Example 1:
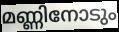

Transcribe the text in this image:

മണ്ണിനോടും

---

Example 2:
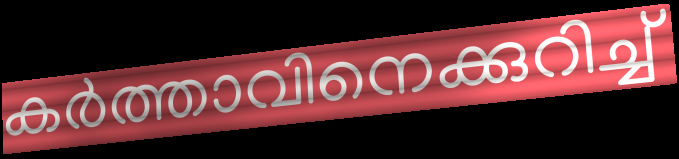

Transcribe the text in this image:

കർത്താവിനെക്കുറിച്ച്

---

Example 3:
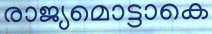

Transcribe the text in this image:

രാജ്യമൊട്ടാകെ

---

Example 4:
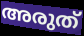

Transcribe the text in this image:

അരുത്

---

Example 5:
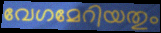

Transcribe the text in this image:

വേഗമേറിയതും